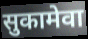
सुकामेवा